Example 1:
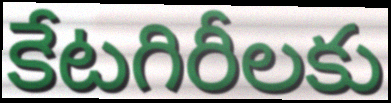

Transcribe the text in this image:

కేటగిరీలకు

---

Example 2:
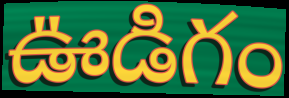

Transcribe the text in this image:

ఊడిగం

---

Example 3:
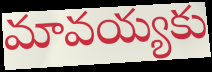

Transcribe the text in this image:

మావయ్యకు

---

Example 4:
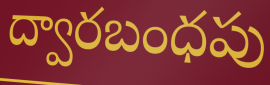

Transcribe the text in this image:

ద్వారబంధపు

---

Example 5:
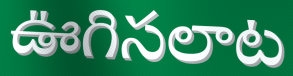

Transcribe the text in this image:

ఊగిసలాట